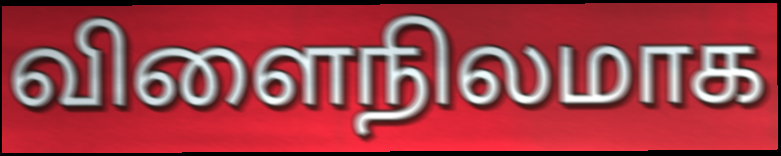
விளைநிலமாக